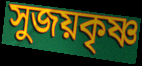
সুজয়কৃষ্ণ